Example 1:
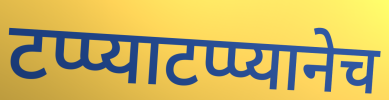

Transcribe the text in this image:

टप्प्याटप्प्यानेच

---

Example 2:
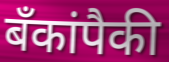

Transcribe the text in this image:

बँकांपैकी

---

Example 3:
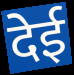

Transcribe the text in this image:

देई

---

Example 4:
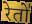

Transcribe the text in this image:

रेतो॑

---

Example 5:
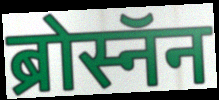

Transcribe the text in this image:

ब्रोस्नॅन